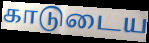
காடுடைய